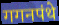
गगनपंथे